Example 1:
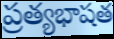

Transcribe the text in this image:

ప్రత్యభాషత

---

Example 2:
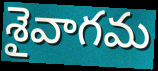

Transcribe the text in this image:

శైవాగమ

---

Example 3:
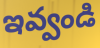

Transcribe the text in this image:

ఇవ్వండి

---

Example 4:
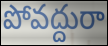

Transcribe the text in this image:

పోవద్దురా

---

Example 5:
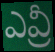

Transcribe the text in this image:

ఎవ్రీ